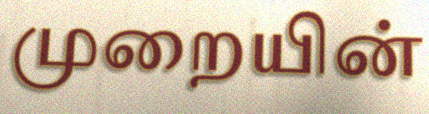
முறையின்